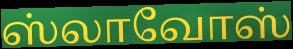
ஸ்லாவோஸ்